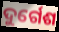
ଦୁର୍ଗେଶ